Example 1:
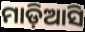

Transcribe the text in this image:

ମାଡ଼ିଆସି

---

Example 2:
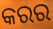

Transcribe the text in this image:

କରର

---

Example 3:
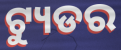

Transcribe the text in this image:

ଟ୍ୟୁଡର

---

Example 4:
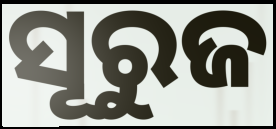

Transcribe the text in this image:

ସୂରୁଜ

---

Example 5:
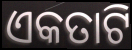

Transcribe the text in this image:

ଏକତାଟି